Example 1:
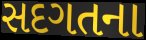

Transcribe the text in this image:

સદગતના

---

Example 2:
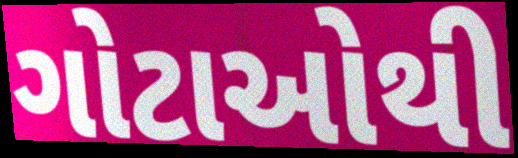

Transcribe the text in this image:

ગોટાઓથી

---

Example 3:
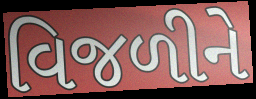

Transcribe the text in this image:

વિજળીને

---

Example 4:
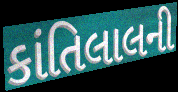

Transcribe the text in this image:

કાંતિલાલની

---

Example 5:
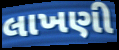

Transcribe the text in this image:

લાખણી